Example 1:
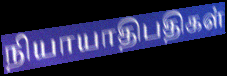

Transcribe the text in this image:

நியாயாதிபதிகள்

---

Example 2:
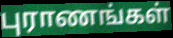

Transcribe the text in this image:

புராணங்கள்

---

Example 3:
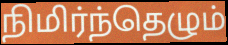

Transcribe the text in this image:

நிமிர்ந்தெழும்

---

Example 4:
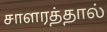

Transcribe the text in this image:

சாளரத்தால்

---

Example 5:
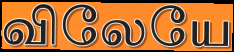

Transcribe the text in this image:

விலேயே